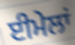
ਈਮੇਲਾਂ